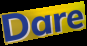
Dare